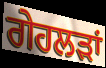
ਗੇਹਲੜਾਂ